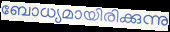
ബോധ്യമായിരിക്കുന്നു